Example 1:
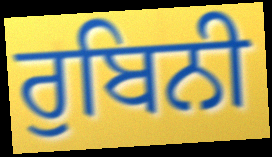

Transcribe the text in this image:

ਰੁਬਿਨੀ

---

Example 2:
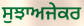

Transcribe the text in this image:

ਸੁਝਾਅਜੇਕਰ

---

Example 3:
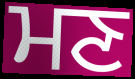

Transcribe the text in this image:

ਮਣ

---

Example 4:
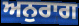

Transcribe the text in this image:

ਅਨੁਰਾਗ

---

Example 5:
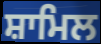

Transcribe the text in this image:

ਸ਼ਾਮਿਲ